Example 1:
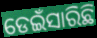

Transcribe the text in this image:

ଡେଇଁସାରିଛି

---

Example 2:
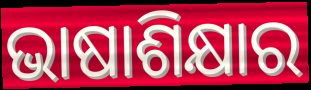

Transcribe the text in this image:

ଭାଷାଶିକ୍ଷାର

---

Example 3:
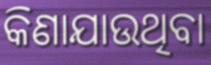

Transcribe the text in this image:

କିଣାଯାଉଥିବା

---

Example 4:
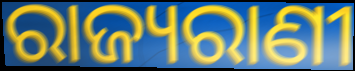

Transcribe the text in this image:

ରାଜ୍ୟରାଣୀ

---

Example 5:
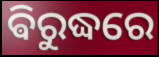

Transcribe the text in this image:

ଵିରୁଦ୍ଧରେ